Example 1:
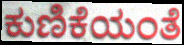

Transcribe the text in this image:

ಕುಣಿಕೆಯಂತೆ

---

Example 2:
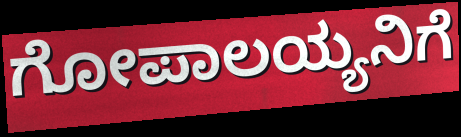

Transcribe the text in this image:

ಗೋಪಾಲಯ್ಯನಿಗೆ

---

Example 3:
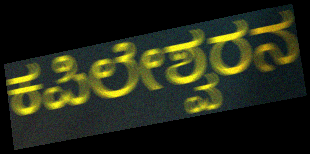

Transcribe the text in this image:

ಕಪಿಲೇಶ್ವರನ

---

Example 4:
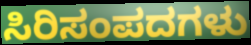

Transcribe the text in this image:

ಸಿರಿಸಂಪದಗಳು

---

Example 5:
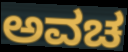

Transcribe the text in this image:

ಅವಚ